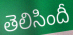
తెలిసిందీ